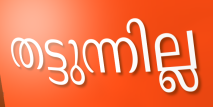
തട്ടുന്നില്ല